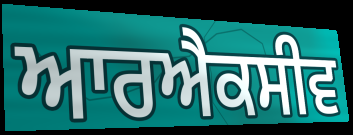
ਆਰਐਕਸੀਵ